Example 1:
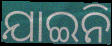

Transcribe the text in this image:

ଯାଇନି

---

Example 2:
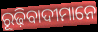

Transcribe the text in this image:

ରୂଢ଼ିବାଦୀମାନେ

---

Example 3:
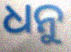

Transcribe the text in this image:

ଧନୁ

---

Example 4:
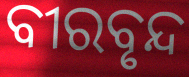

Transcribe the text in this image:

ବୀରବୃନ୍ଦ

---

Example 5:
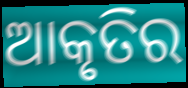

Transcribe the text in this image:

ଆକୃତିର